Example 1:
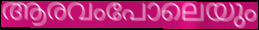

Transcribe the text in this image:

ആരവംപോലെയും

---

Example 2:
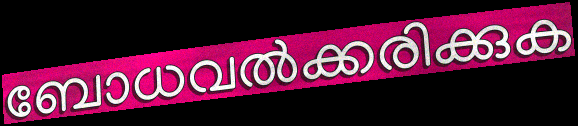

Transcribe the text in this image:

ബോധവൽക്കരിക്കുക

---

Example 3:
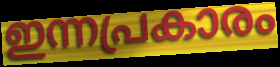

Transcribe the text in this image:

ഇന്നപ്രകാരം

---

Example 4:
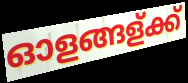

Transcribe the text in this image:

ഓളങ്ങള്ക്ക്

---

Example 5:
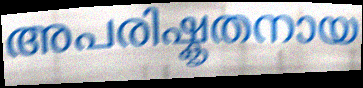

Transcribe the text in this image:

അപരിഷ്കൃതനായ